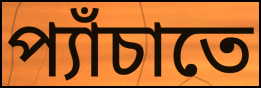
প্যাঁচাতে